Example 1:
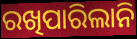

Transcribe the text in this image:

ରଖିପାରିଲାନି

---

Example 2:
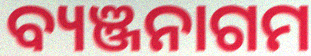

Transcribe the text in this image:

ବ୍ୟଞ୍ଜନାଗମ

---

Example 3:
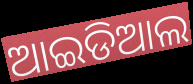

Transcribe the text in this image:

ଆଇଡିଆଲ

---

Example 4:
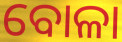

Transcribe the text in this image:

ବୋଳା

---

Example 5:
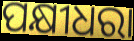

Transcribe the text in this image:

ପକ୍ଷୀଧରା